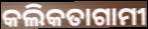
କଲିକତାଗାମୀ